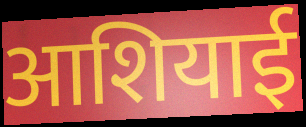
आशियाई